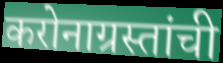
करोनाग्रस्तांची